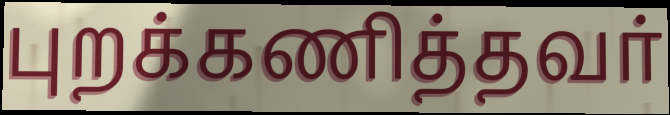
புறக்கணித்தவர்